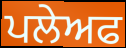
ਪਲੇਅਫ